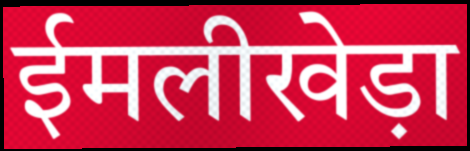
ईमलीखेड़ा